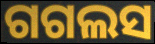
ଗଗଲସ